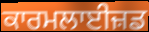
ਕਾਰਮਲਾਈਜ਼ਡ